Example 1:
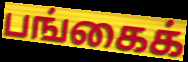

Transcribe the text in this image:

பங்கைக்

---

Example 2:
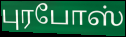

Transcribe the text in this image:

புரபோஸ்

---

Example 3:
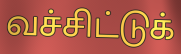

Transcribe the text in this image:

வச்சிட்டுக்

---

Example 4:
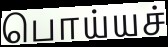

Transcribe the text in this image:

பொய்யச்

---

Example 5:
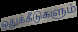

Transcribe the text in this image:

ஒதுக்கீடுகளும்